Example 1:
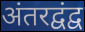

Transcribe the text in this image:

अंतरद्वंद्व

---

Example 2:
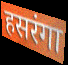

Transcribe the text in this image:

हसरंगा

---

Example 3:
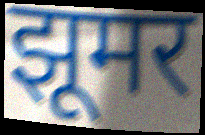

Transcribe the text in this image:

झूमर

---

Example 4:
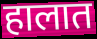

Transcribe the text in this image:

हालात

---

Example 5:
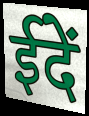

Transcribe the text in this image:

ईदें